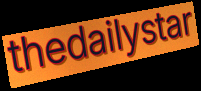
thedailystar